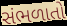
સંભળાતો